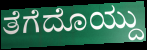
ತೆಗೆದೊಯ್ದು